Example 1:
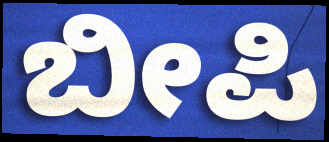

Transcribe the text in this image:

ಬೀಪಿ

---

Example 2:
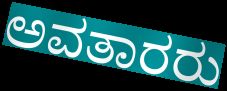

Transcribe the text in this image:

ಅವತಾರರು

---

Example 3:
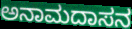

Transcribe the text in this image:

ಅನಾಮದಾಸನ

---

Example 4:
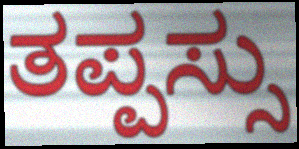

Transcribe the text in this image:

ತಪ್ಪಸ್ಸು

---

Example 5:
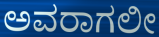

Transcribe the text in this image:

ಅವರಾಗಲೀ